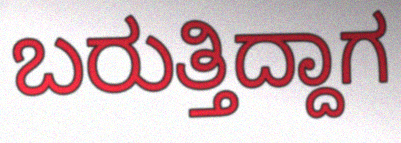
ಬರುತ್ತಿದ್ದಾಗ